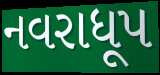
નવરાધૂપ